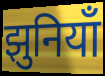
झुनियाँ